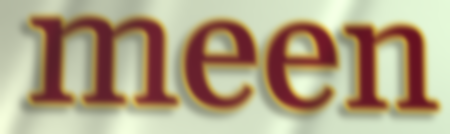
meen